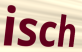
isch